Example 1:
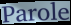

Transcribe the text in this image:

Parole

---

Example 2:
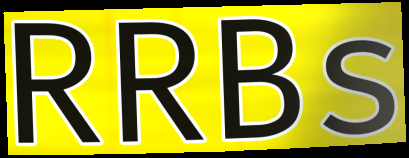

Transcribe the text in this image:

RRBs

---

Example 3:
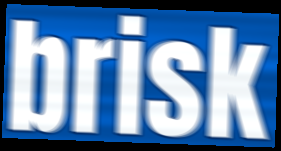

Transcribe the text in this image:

brisk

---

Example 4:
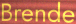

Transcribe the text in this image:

Brende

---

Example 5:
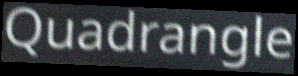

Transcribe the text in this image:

Quadrangle